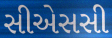
સીએસસી